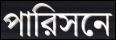
পারিসনে